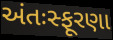
અંતઃસ્ફૂરણા